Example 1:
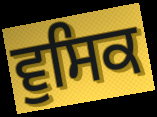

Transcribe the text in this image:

ਵੁਸਿਕ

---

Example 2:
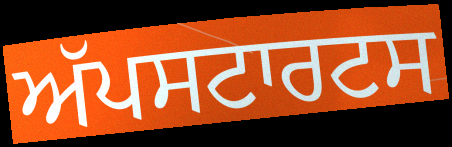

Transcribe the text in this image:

ਅੱਪਸਟਾਰਟਸ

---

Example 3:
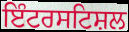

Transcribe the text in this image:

ਇੰਟਰਸਟਿਸ਼ਲ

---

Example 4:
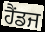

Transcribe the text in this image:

ਹੈਂਡਜ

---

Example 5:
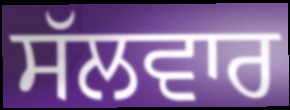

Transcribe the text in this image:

ਸੱਲਵਾਰ